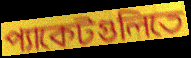
প্যাকেটগুলিতে